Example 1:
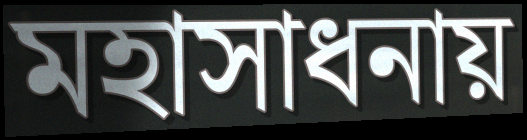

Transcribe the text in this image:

মহাসাধনায়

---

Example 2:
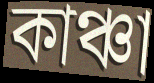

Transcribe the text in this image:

কাঞ্চা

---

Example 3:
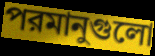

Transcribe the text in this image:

পরমানুগুলো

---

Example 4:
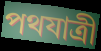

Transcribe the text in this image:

পথযাত্রী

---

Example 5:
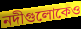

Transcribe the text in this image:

নদীগুলোকেও